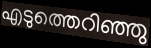
എടുത്തെറിഞ്ഞു